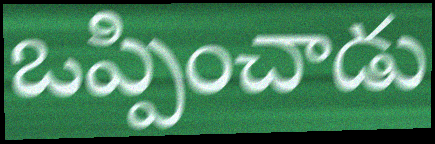
ఒప్పించాడు